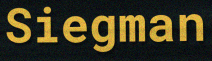
Siegman